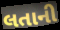
લતાની